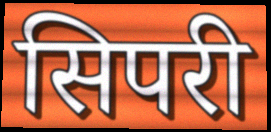
सिपरी